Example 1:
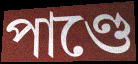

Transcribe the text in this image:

পাণ্ডে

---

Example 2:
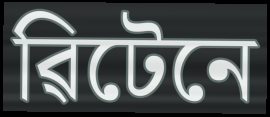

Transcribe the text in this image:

ৱিটেনে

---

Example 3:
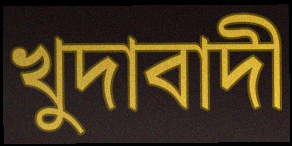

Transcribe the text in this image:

খুদাবাদী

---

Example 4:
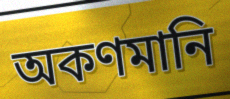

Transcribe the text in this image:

অকণমানি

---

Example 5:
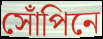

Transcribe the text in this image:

সোঁপিনে